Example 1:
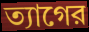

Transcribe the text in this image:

ত্যাগের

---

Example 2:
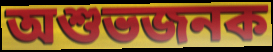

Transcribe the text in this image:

অশুভজনক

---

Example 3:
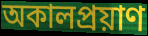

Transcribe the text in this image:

অকালপ্রয়াণ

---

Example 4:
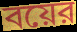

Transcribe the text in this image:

বয়ের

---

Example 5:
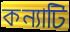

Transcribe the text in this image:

কন্যাটি